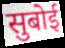
सुबोई